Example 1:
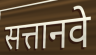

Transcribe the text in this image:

सत्तानवे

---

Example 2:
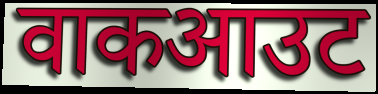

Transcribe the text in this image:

वाकआउट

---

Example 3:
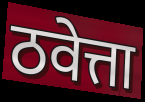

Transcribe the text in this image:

ठवेत्ता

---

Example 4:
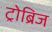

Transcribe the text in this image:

ट्रोब्रिज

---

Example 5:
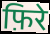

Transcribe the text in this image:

फ़िरे